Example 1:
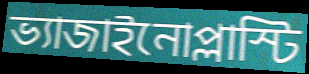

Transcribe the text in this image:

ভ্যাজাইনোপ্লাস্টি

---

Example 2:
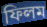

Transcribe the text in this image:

ফিলম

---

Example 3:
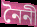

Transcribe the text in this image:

নৈনী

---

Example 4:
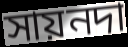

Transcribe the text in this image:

সায়নদা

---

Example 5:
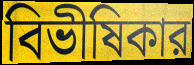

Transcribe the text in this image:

বিভীষিকার